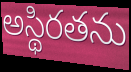
అస్థిరతను